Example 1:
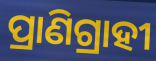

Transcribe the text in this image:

ପ୍ରାଣିଗ୍ରାହୀ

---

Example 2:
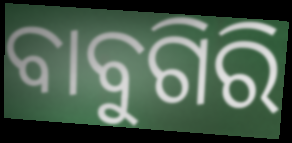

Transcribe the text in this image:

ବାବୁଗିରି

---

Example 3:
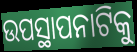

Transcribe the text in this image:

ଉପସ୍ଥାପନାଟିକୁ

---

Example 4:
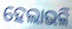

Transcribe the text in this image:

ହେଲାଭଳି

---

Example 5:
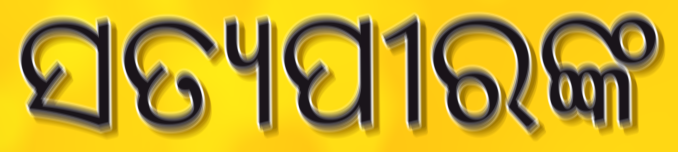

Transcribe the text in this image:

ସତ୍ୟପୀରଙ୍କ